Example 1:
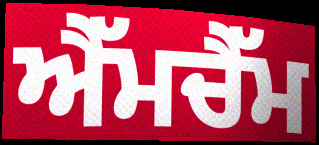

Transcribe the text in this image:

ਐੱਮਚੈੱਮ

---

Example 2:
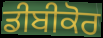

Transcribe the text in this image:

ਡੀਬੀਕੋਰ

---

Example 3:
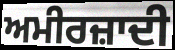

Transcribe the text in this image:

ਅਮੀਰਜ਼ਾਦੀ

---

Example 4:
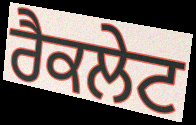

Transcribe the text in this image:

ਰੈਕਲੇਟ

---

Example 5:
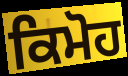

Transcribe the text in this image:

ਕਿਮੋਹ